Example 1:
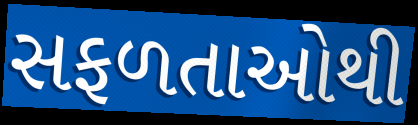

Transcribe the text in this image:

સફળતાઓથી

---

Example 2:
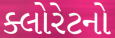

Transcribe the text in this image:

ક્લોરેટનો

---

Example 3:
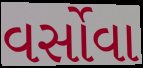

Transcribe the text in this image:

વર્સોવા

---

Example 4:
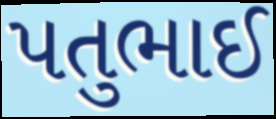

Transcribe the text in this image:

પતુભાઈ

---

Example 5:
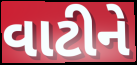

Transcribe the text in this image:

વાટીને